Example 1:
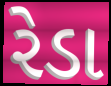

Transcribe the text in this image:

રેડા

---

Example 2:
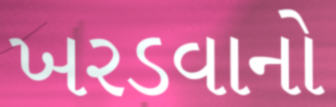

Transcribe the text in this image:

ખરડવાનો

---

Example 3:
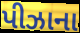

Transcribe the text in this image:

પીઝાના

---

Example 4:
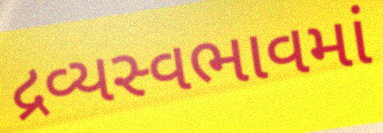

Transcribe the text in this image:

દ્રવ્યસ્વભાવમાં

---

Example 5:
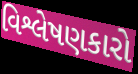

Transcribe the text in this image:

વિશ્લેષણકારો